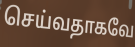
செய்வதாகவே